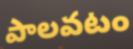
పాలవటం